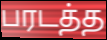
பரடத்த